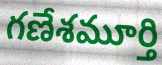
గణేశమూర్తి